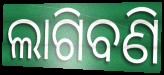
ଲାଗିବଣି